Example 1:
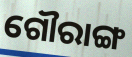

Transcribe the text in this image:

ଗୌରାଙ୍ଗ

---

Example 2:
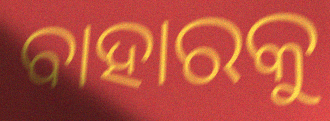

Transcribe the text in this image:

ବାହାରକୁ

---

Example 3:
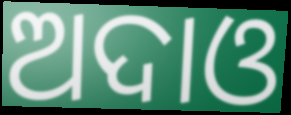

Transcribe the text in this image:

ଅଦାଓ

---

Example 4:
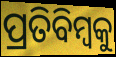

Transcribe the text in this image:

ପ୍ରତିବିମ୍ବକୁ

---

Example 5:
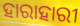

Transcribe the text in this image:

ହାରାହାରୀ